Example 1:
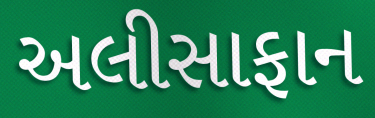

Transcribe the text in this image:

અલીસાફાન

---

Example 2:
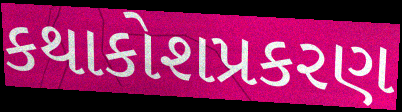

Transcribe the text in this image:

કથાકોશપ્રકરણ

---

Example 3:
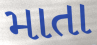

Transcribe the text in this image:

માતા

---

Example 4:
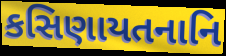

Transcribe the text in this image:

કસિણાયતનાનિ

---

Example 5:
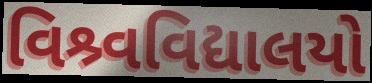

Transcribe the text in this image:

વિશ્ર્વવિદ્યાલયો